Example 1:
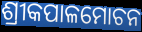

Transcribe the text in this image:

ଶ୍ରୀକପାଳମୋଚନ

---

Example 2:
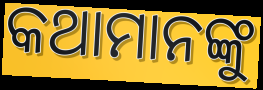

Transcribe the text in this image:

କଥାମାନଙ୍କୁ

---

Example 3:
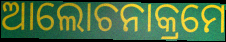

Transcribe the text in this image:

ଆଲୋଚନାକ୍ରମେ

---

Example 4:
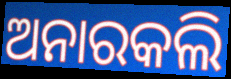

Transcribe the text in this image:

ଅନାରକଲି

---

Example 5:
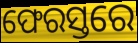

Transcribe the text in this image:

ଫେରସ୍ତରେ